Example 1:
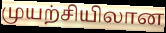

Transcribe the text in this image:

முயற்சியிலான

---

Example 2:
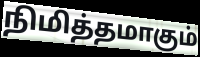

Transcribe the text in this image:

நிமித்தமாகும்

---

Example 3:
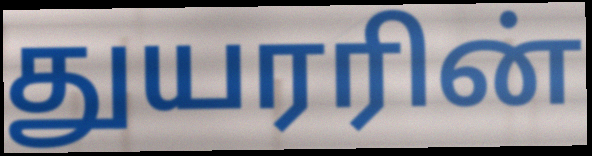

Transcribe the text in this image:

துயரரின்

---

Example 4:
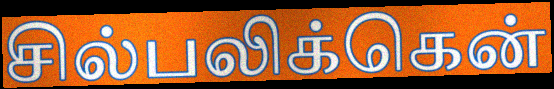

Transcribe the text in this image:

சில்பலிக்கென்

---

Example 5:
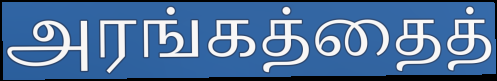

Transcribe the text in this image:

அரங்கத்தைத்